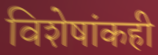
विशेषांकही